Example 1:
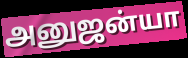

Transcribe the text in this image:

அனுஜன்யா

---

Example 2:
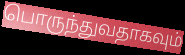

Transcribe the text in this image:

பொருந்துவதாகவும்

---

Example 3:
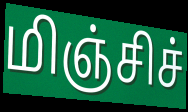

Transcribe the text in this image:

மிஞ்சிச்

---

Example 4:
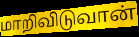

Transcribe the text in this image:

மாறிவிடுவான்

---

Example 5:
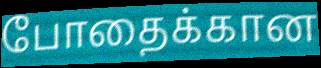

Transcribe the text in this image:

போதைக்கான